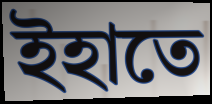
ইহাতে